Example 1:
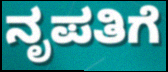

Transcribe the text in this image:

ನೃಪತಿಗೆ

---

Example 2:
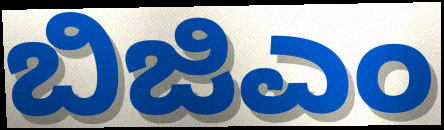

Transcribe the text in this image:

ಬಿಜಿಎಂ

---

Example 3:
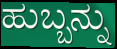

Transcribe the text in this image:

ಹುಬ್ಬನ್ನು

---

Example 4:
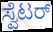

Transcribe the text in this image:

ಸ್ವೆಟರ್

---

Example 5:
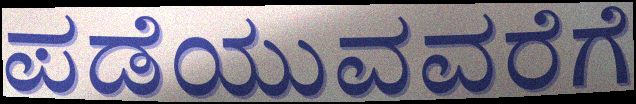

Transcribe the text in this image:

ಪಡೆಯುವವರೆಗೆ